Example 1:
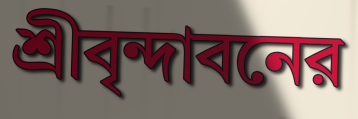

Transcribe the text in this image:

শ্রীবৃন্দাবনের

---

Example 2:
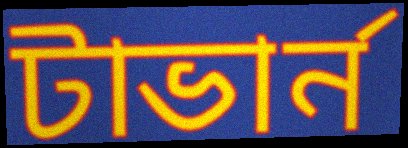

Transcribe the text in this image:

টাভার্ন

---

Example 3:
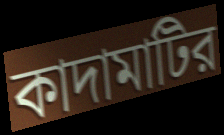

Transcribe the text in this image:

কাদামাটির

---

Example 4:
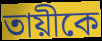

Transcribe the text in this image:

তায়ীকে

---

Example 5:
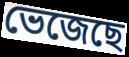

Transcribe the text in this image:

ভেজেছে